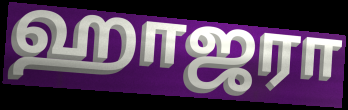
ஹாஜரா